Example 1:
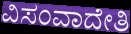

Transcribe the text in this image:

ವಿಸಂವಾದೇತಿ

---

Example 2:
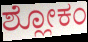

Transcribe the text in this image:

ಶ್ಲೋಕಂ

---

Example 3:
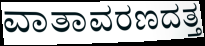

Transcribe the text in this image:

ವಾತಾವರಣದತ್ತ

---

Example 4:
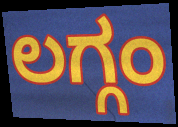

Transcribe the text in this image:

ಲಗ್ಗಂ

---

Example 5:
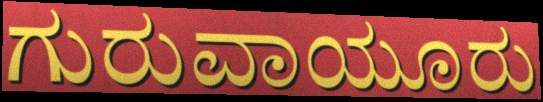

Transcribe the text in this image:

ಗುರುವಾಯೂರು